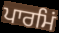
ਪਾਰਮਿਂ